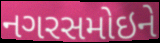
નગરસમોઇને